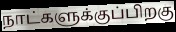
நாட்களுக்குப்பிறகு